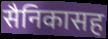
सैनिकासह